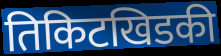
तिकिटखिडकी